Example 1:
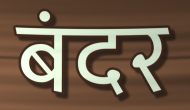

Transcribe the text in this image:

बंदर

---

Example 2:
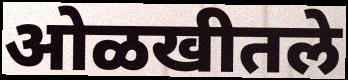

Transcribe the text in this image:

ओळखीतले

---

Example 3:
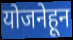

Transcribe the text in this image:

योजनेहून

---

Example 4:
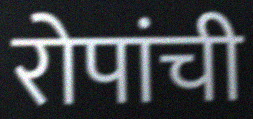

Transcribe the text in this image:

रोपांची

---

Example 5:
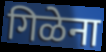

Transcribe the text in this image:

गिळेना